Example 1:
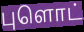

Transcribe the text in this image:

புளொட்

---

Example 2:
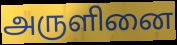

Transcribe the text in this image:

அருளினை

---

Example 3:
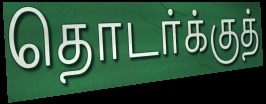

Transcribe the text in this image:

தொடர்க்குத்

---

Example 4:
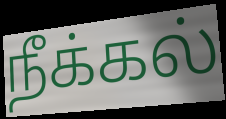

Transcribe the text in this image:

நீக்கல்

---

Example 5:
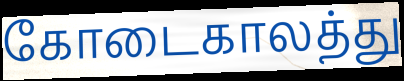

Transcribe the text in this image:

கோடைகாலத்து